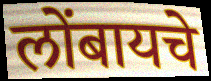
लोंबायचे